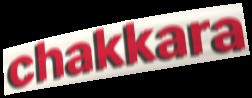
chakkara